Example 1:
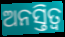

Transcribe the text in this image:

ଅନସ୍ତିତ୍ୱ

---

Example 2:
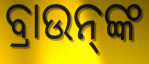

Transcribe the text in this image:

ବ୍ରାଉନ୍‌ଙ୍କ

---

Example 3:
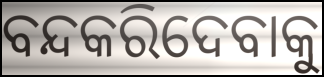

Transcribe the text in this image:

ବନ୍ଦକରିଦେବାକୁ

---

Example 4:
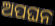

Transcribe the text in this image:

ଅପଘନ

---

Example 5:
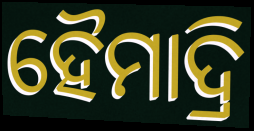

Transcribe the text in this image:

ହୈମାଦ୍ରି